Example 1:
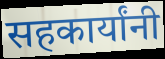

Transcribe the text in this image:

सहकार्यांनी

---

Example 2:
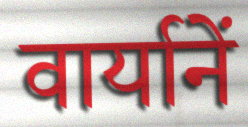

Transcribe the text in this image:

वार्यानें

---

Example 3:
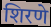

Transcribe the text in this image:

शिरणे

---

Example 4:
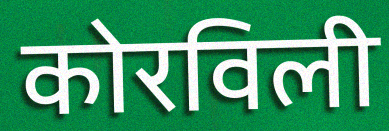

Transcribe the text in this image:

कोरविली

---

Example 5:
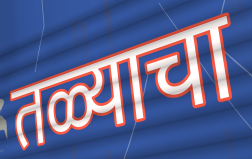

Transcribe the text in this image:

तळ्याचा